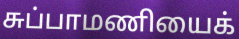
சுப்பாமணியைக்